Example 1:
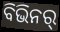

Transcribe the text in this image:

ବିଭିନର୍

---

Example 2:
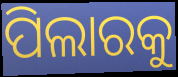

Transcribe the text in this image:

ପିଲାରକୁ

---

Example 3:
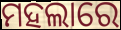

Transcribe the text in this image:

ମହଲାରେ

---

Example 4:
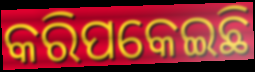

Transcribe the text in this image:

କରିପକେଇଛି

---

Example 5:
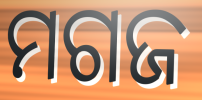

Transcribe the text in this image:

ମଗଜ